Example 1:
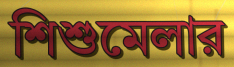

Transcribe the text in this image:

শিশুমেলার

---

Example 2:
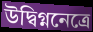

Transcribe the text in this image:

উদ্বিগ্ননেত্রে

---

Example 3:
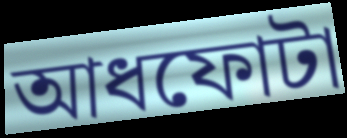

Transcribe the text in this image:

আধফোটা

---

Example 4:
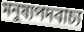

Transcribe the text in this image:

মনুষ্যপদবাচ্য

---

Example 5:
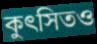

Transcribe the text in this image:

কুৎসিতও